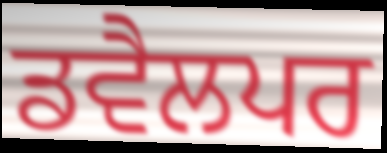
ਡਵੈਲਪਰ